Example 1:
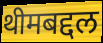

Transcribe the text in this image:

थीमबद्दल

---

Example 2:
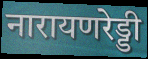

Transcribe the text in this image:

नारायणरेड्डी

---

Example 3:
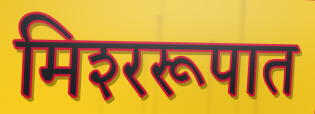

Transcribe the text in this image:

मिश्ररूपात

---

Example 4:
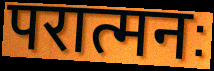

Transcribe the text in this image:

परात्मनः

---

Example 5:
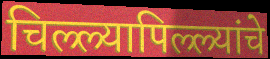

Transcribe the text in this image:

चिल्ल्यापिल्ल्यांचे